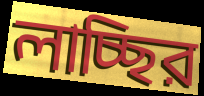
লাচ্ছির